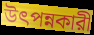
উৎপন্নকারী